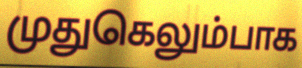
முதுகெலும்பாக